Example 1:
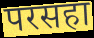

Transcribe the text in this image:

परसहा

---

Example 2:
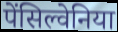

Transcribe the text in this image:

पेंसिल्वेनिया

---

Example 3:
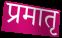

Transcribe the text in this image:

प्रमातृ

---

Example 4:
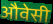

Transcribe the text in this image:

औवेसी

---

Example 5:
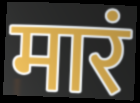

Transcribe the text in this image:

मारं